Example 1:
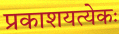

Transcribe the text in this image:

प्रकाशयत्येकः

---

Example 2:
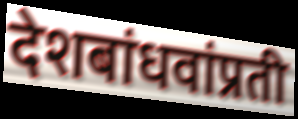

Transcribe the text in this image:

देशबांधवांप्रती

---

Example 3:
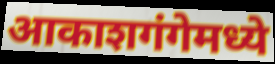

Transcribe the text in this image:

आकाशगंगेमध्ये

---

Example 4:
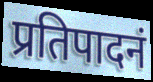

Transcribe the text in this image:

प्रतिपादनं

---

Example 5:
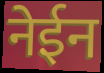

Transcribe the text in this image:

नेईन